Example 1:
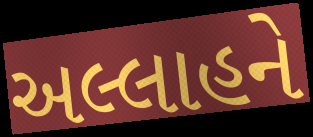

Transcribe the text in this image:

અલ્લાહને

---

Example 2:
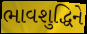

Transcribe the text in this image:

ભાવશુદ્ધિને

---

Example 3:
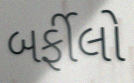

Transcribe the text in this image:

બર્ફીલો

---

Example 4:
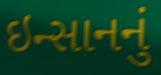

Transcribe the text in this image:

ઇન્સાનનું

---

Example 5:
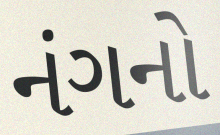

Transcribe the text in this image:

નંગનો